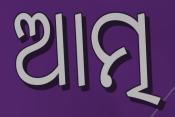
ଆତ୍ମ